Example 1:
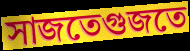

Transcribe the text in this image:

সাজতেগুজতে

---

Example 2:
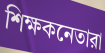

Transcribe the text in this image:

শিক্ষকনেতারা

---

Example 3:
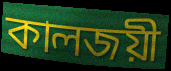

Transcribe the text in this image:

কালজয়ী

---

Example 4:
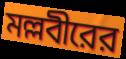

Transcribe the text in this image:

মল্লবীরের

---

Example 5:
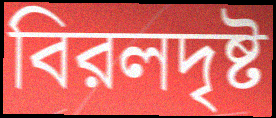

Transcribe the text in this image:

বিরলদৃষ্ট